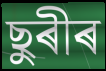
ছুৰীৰ